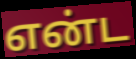
என்ட